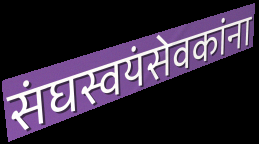
संघस्वयंसेवकांना